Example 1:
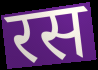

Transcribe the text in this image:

रस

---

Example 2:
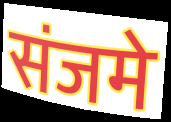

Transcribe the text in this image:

संजमे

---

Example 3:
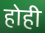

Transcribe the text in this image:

होही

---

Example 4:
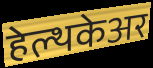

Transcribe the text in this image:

हेल्थकेअर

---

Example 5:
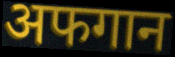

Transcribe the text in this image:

अफगान